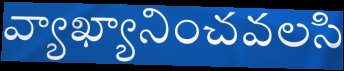
వ్యాఖ్యానించవలసి